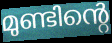
മുണ്ടിന്റെ